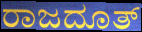
ರಾಜದೂತ್